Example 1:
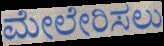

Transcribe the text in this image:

ಮೇಲೇರಿಸಲು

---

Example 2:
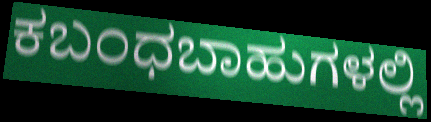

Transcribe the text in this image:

ಕಬಂಧಬಾಹುಗಳಲ್ಲಿ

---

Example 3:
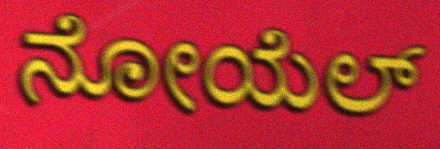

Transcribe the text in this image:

ನೋಯೆಲ್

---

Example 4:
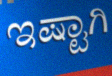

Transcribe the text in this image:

ಇಷ್ಟಾಗಿ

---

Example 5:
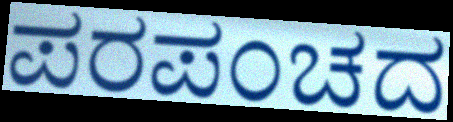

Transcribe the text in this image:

ಪರಪಂಚದ